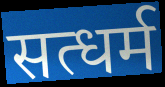
सत्धर्म